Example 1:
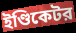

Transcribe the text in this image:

ইণ্ডিকেটর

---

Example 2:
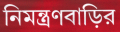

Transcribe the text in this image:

নিমন্ত্রণবাড়ির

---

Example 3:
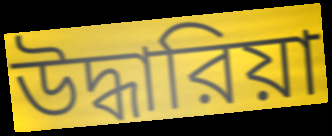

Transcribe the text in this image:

উদ্ধারিয়া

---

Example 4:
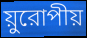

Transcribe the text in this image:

য়ুরোপীয়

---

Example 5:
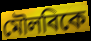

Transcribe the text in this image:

মৌলবিকে